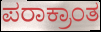
ಪರಾಕ್ರಾಂತ